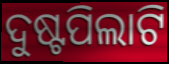
ଦୁଷ୍ଟପିଲାଟି